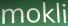
mokli